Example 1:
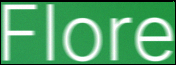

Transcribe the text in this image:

Flore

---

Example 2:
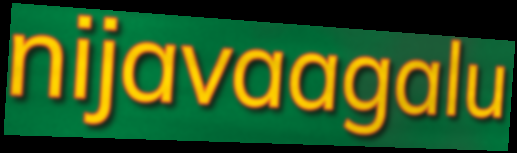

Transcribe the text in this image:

nijavaagalu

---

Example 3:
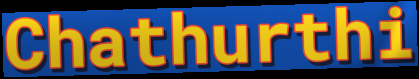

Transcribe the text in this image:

Chathurthi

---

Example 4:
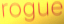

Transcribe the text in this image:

rogue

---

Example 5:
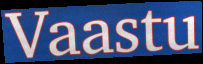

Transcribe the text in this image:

Vaastu